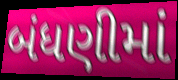
બંધણીમાં